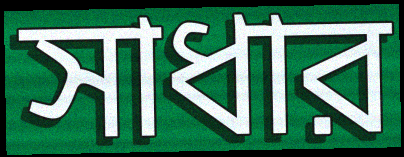
সাধার